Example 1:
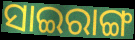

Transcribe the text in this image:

ସାଇରାଙ୍ଗ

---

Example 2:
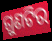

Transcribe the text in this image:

ଗୁଣଟିର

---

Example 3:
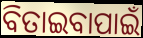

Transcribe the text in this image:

ବିତାଇବାପାଇଁ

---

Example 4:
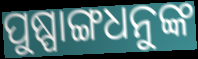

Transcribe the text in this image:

ପୁଷ୍ପାଙ୍ଗଧନୁଙ୍କ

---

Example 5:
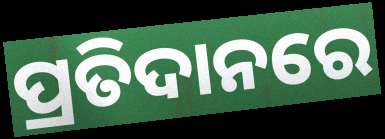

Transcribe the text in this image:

ପ୍ରତିଦାନରେ